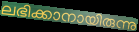
ലഭിക്കാനായിരുന്നു